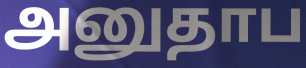
அனுதாப